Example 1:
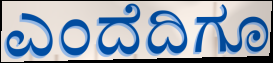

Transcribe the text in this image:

ಎಂದೆದಿಗೂ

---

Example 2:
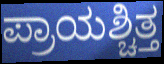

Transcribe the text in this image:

ಪ್ರಾಯಶ್ಚಿತ್ತ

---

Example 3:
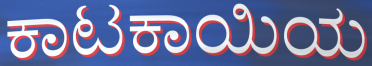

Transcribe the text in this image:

ಕಾಟಕಾಯಿಯ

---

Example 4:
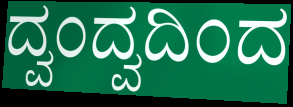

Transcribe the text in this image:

ದ್ವಂದ್ವದಿಂದ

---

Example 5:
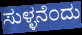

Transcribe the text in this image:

ಸುಳ್ಳನೆಂದು